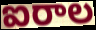
ఐరాల